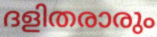
ദളിതരാരും